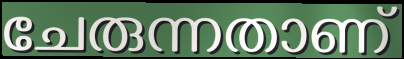
ചേരുന്നതാണ്